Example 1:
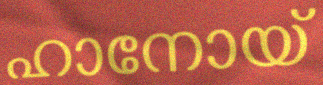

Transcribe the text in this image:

ഹാനോയ്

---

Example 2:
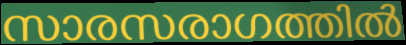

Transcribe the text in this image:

സാരസരാഗത്തിൽ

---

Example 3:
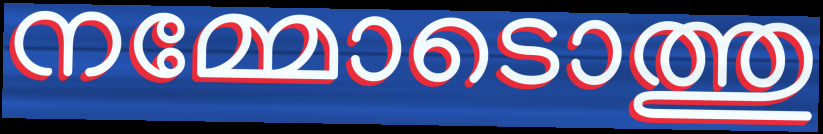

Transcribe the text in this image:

നമ്മോടൊത്തു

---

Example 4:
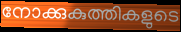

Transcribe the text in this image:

നോക്കുകുത്തികളുടെ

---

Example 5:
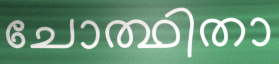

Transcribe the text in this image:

ചോത്ഥിതാ